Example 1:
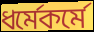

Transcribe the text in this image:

ধর্মেকর্মে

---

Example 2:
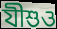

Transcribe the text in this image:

যীশুও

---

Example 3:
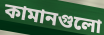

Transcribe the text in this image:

কামানগুলো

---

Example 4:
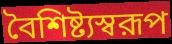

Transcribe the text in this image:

বৈশিষ্ট্যস্বরূপ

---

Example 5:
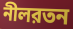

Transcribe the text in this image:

নীলরতন